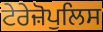
ਟੇਰੇਜ਼ੋਪੁਲਿਸ